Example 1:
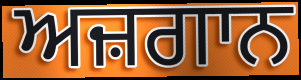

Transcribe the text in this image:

ਅਜ਼ਗਾਨ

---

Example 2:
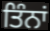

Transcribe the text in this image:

ਤਿੰਨਾਂ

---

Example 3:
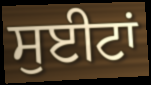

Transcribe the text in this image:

ਸੁਈਟਾਂ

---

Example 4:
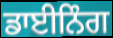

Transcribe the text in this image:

ਡਾਈਨਿੰਗ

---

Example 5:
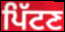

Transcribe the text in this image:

ਪਿੱਟਣ